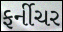
ફર્નીચર